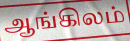
ஆங்கிலம்